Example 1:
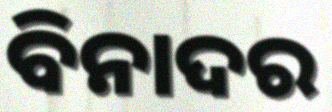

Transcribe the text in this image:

ବିନାଦର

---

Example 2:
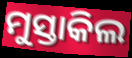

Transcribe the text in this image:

ମୁସ୍ତାକିଲ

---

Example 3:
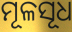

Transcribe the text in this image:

ମୂଳସୂଧ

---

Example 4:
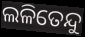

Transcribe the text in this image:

ଲଳିତେନ୍ଦୁ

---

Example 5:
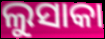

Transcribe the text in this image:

ଲୁସାକା